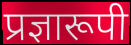
प्रज्ञारूपी